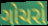
ગોચરો